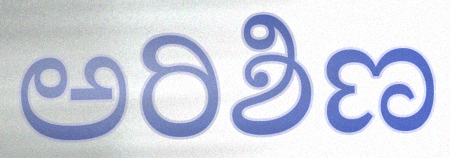
ಅರಿಶಿಣ